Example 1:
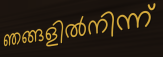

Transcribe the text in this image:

ഞങ്ങളിൽനിന്ന്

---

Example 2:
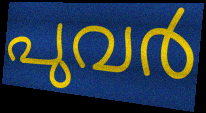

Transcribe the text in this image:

പുവർ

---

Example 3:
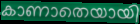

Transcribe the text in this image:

കാണാതെയായി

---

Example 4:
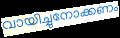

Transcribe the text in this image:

വായിച്ചുനോക്കണം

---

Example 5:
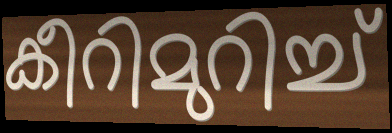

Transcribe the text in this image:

കീറിമുറിച്ച്